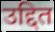
उद्दित